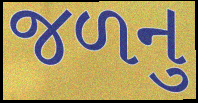
જળનુ